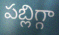
పబ్లిగ్గా